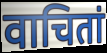
वाचितां